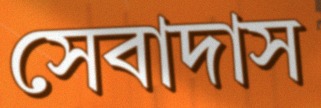
সেবাদাস